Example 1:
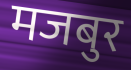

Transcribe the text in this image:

मजबुर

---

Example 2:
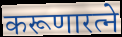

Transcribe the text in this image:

करूणारत्ने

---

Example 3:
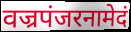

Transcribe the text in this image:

वज्रपंजरनामेदं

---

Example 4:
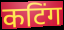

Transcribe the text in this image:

कटिंग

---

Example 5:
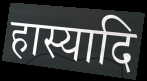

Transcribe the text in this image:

हास्यादि